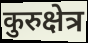
कुरुक्षेत्र